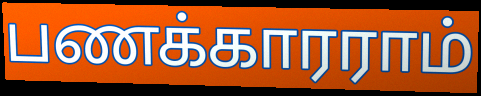
பணக்காரராம்